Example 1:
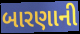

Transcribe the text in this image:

બારણાની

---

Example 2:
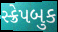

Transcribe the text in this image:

સ્ક્રેપબુક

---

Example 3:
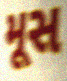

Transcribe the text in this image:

મૂસ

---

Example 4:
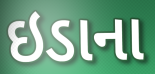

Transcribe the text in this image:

ઇડાના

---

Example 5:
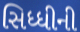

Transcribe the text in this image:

સિધ્ધીની